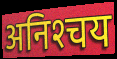
अनिश्चय